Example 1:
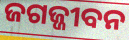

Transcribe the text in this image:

ଜଗଜ୍ଜୀବନ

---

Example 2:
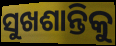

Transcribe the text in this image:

ସୁଖଶାନ୍ତିକୁ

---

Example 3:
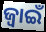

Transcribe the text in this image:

ଜ୍ବାଇଁ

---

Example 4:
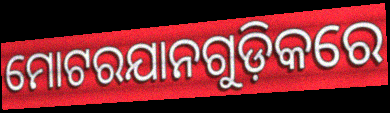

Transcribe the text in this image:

ମୋଟରଯାନଗୁଡ଼ିକରେ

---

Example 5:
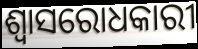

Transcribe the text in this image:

ଶ୍ୱାସରୋଧକାରୀ